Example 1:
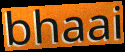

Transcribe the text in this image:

bhaai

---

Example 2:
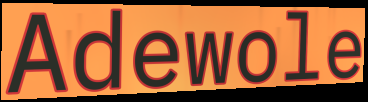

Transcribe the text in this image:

Adewole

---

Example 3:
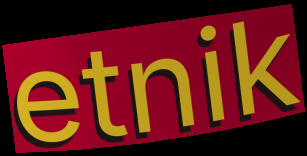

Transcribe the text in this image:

etnik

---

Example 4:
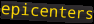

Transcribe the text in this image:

epicenters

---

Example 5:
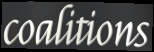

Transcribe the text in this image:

coalitions